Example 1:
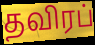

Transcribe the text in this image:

தவிரப்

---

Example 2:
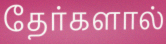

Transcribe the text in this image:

தேர்களால்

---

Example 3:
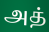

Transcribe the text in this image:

அத்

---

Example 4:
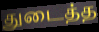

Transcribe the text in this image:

துடைத்த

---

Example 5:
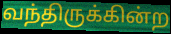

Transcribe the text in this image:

வந்திருக்கின்ற